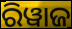
ରିୱାଜ